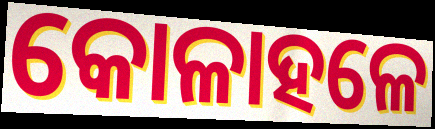
କୋଳାହଳେ